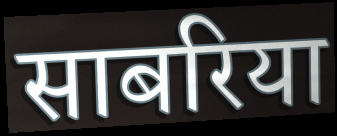
साबरिया